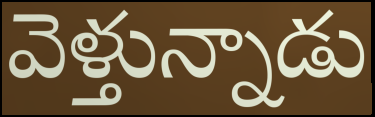
వెళ్తున్నాడు